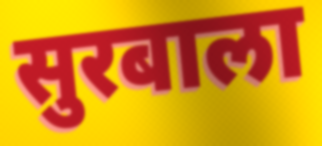
सुरबाला